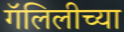
गॅलिलीच्या